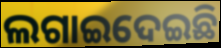
ଲଗାଇଦେଇଛି